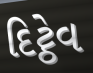
દિટ્ઠેવ